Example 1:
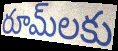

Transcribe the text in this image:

రూమ్‌లకు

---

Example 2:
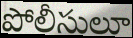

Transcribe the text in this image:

పోలీసులూ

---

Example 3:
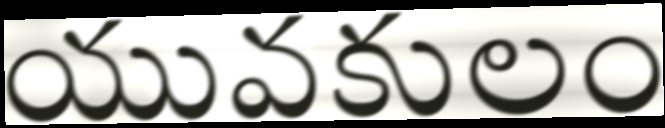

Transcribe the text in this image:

యువకులం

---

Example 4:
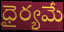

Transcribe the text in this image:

ధైర్యమే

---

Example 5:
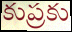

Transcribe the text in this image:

కుప్రకు